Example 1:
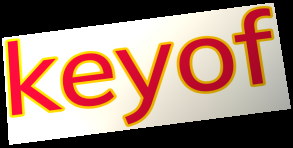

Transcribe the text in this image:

keyof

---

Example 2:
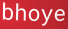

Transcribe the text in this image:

bhoye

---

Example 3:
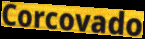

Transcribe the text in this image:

Corcovado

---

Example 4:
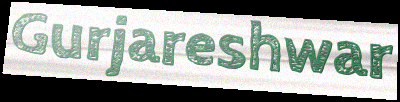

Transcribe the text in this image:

Gurjareshwar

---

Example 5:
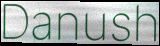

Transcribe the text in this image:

Danush